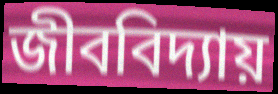
জীববিদ্যায়